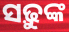
ସଢ଼ୁଙ୍କ